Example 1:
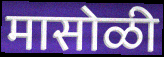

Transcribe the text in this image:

मासोळी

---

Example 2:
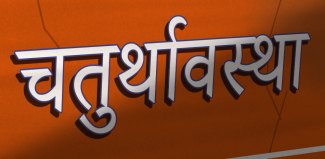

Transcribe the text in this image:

चतुर्थावस्था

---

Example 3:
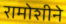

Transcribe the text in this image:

रामोशीने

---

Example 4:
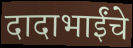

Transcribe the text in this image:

दादाभाईंचे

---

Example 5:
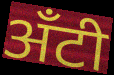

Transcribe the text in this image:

अँटी